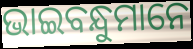
ଭାଇବନ୍ଧୁମାନେ